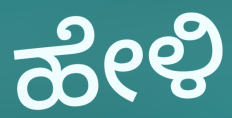
ಹೇಳಿ